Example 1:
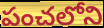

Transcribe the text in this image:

పంచలోని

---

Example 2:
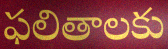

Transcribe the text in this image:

ఫలితాలకు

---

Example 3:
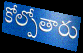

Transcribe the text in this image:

కోల్పోతారు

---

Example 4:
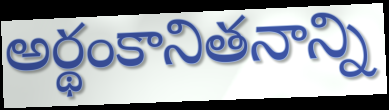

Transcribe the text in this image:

అర్థంకానితనాన్ని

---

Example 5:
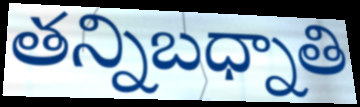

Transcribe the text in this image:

తన్నిబధ్నాతి